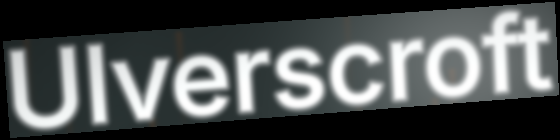
Ulverscroft